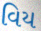
વિય